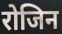
रोजिन